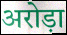
अरोड़ा